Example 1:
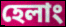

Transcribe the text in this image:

হেলাং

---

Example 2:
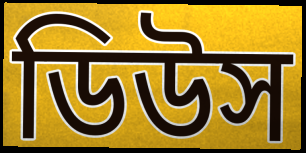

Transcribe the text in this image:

ডিউস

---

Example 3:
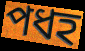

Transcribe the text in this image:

পধহ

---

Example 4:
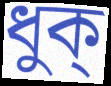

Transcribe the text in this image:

ধুক্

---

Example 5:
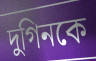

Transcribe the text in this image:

দুগিনকে